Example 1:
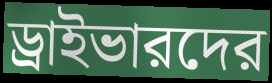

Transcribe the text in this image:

ড্রাইভারদের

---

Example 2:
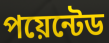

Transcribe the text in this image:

পয়েন্টেড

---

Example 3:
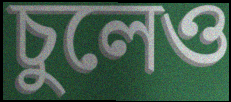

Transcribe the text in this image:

চুলেও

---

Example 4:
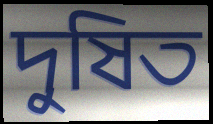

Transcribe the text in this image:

দুষিত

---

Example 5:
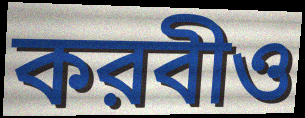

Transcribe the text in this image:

করবীও